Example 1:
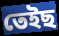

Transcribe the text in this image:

তেইছ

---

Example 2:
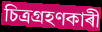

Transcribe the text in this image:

চিত্ৰগ্ৰহণকাৰী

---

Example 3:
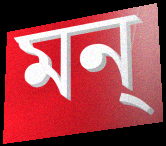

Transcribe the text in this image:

মন্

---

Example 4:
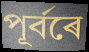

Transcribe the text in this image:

পূৰ্বৰে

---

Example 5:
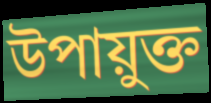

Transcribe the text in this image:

উপায়ুক্ত